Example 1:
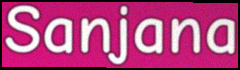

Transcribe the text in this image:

Sanjana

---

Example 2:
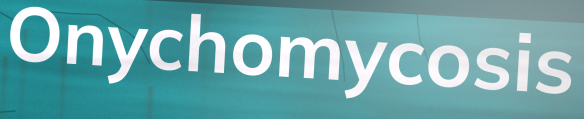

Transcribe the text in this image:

Onychomycosis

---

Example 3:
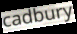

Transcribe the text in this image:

cadbury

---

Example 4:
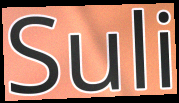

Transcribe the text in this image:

Suli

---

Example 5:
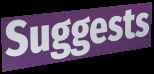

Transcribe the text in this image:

Suggests